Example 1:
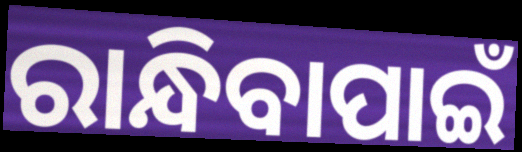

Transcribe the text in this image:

ରାନ୍ଧିବାପାଇଁ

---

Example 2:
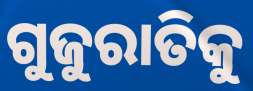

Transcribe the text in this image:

ଗୁଜୁରାତିକୁ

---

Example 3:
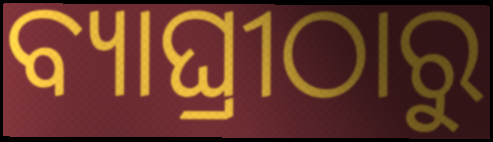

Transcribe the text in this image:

ବ୍ୟାଘ୍ରୀଠାରୁ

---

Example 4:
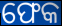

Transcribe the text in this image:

ଫେକ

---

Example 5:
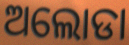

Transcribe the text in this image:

ଅଲୋଡା